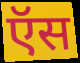
ऍस